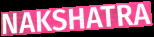
NAKSHATRA